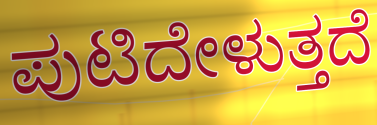
ಪುಟಿದೇಳುತ್ತದೆ